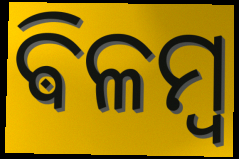
ଵିଳମ୍ବ